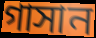
গাসান